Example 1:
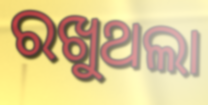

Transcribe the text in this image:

ରଖୁଥଲା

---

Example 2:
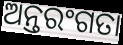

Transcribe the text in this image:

ଅନ୍ତରଂଗତା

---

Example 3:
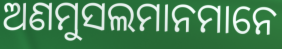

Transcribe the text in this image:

ଅଣମୁସଲମାନମାନେ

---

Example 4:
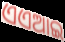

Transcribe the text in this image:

ଏଏଆଇ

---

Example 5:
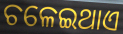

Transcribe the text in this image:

ଚଳେଇଥାଏ